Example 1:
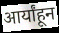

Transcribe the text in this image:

आर्यांहून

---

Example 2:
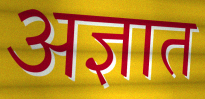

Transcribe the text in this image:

अज्ञात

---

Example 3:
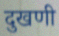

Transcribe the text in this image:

दुखणी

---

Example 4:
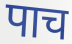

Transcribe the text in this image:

पाच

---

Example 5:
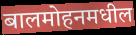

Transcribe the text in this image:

बालमोहनमधील